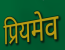
प्रियमेव